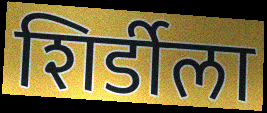
शिर्डीला